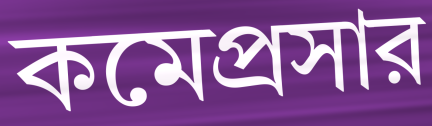
কমেপ্রসার